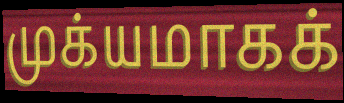
முக்யமாகக்